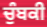
ਚੁੰਬਕੀ